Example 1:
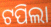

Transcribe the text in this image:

ଟପିଲା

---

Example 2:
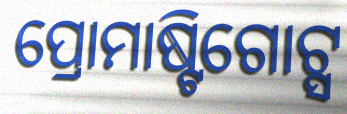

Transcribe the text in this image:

ପ୍ରୋମାଷ୍ଟିଗୋଟ୍ସ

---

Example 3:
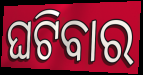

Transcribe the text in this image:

ଘଟିବାର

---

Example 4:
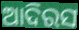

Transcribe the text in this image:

ଆଦିରସ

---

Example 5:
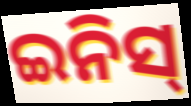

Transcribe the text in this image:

ଇନିସ୍